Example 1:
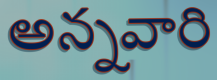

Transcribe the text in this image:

అన్నవారి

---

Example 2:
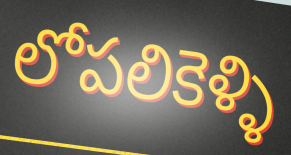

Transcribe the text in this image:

లోపలికెళ్ళి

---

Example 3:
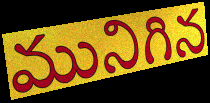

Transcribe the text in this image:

మునిగిన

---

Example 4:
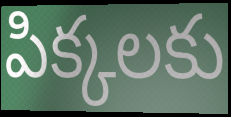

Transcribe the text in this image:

పిక్కలకు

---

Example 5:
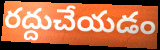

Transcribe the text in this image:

రద్దుచేయడం